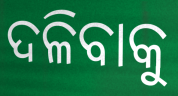
ଦଳିବାକୁ